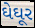
ઘેઘૂર